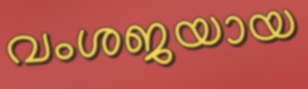
വംശജയായ